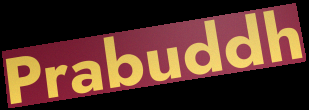
Prabuddh